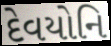
દેવયોનિ